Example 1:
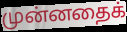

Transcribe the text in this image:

முன்னதைக்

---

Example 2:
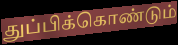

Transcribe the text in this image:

துப்பிக்கொண்டும்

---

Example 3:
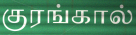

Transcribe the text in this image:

குரங்கால்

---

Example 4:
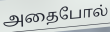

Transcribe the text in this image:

அதைபோல்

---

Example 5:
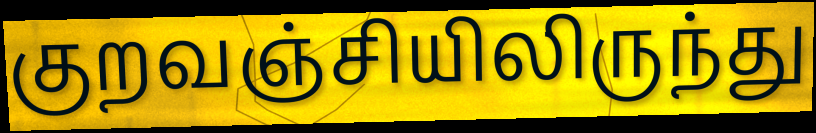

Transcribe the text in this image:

குறவஞ்சியிலிருந்து